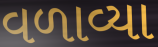
વળાવ્યા